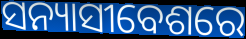
ସନ୍ୟାସୀବେଶରେ